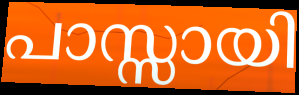
പാസ്സായി